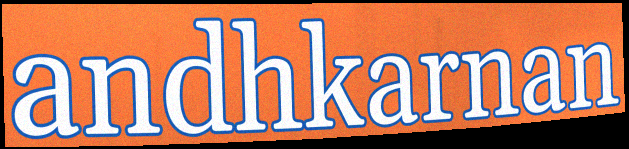
andhkarnan